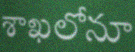
శాఖలోనూ